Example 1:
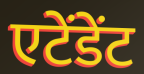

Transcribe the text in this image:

एटेंडेंट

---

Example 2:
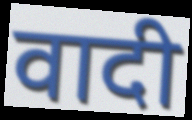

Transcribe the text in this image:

वादी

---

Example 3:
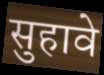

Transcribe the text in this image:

सुहावे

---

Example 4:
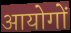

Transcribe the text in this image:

आयोगों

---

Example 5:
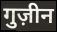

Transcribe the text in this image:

गुज़ीन